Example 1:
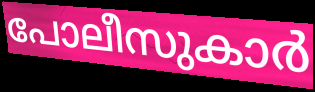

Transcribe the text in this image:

പോലീസുകാർ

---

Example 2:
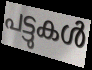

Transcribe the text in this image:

പട്ടുകൾ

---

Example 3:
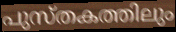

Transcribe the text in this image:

പുസ്തകത്തിലും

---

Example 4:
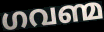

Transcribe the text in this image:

ഗവണ്മ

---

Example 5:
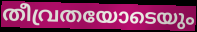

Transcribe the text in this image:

തീവ്രതയോടെയും